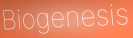
Biogenesis